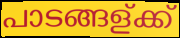
പാടങ്ങള്ക്ക്